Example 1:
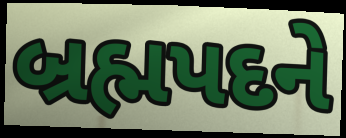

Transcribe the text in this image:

બ્રહ્મપદને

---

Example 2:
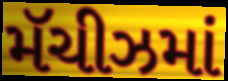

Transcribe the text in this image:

મૅચીઝમાં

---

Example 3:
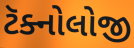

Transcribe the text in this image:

ટૅક્નોલોજી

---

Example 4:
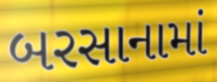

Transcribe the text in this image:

બરસાનામાં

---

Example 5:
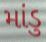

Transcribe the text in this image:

માંડુ